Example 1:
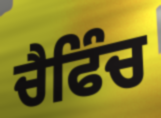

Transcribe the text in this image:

ਚੈਫਿੰਚ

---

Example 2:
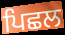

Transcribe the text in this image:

ਪਿਛਲ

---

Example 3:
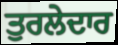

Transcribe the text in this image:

ਤੁਰਲੇਦਾਰ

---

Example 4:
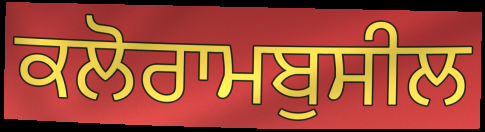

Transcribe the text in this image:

ਕਲੋਰਾਮਬੁਸੀਲ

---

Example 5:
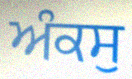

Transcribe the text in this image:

ਅੰਕਸੁ